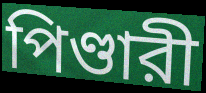
পিণ্ডারী